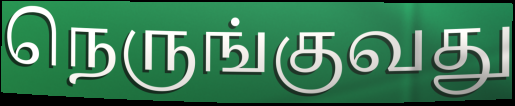
நெருங்குவது